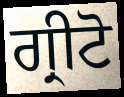
ਗ੍ਰੀਟੋ